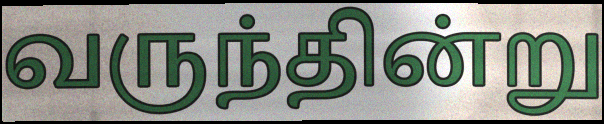
வருந்தின்று